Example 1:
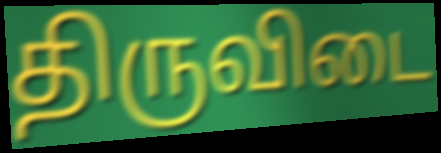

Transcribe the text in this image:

திருவிடை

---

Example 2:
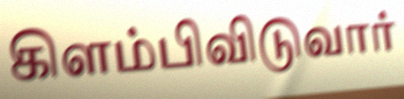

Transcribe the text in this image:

கிளம்பிவிடுவார்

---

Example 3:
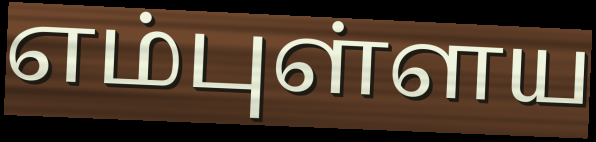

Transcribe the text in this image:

எம்புள்ளய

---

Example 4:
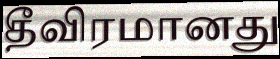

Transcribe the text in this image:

தீவிரமானது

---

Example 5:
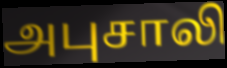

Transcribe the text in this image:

அபுசாலி